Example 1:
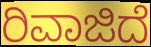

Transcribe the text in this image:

ರಿವಾಜಿದೆ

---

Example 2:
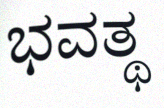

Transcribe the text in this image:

ಭವತ್ಥ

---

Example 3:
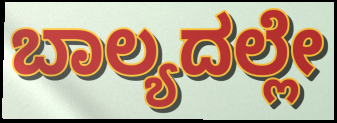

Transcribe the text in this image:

ಬಾಲ್ಯದಲ್ಲೇ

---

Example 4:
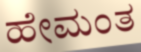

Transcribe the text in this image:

ಹೇಮಂತ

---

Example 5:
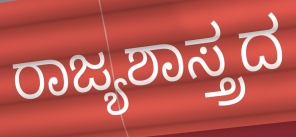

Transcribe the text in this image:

ರಾಜ್ಯಶಾಸ್ತ್ರದ